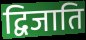
द्विजाति